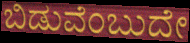
ಬಿಡುವೆಂಬುದೇ